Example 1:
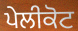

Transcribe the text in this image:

ਪੇਲੀਕੋਟ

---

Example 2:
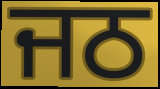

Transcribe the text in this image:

ਜਠ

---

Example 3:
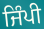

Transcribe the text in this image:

ਜਿੰਪੀ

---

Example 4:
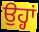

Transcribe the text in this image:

ਉਹ੍ਹਾਂ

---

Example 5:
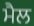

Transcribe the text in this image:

ਮੈਲ